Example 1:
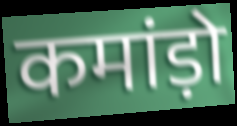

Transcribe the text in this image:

कमांड़ो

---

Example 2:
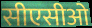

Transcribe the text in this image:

सीएसीओ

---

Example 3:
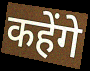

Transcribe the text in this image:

कहेंगे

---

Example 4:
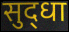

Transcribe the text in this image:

सुद्धा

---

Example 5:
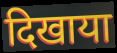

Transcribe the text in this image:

दिखाया